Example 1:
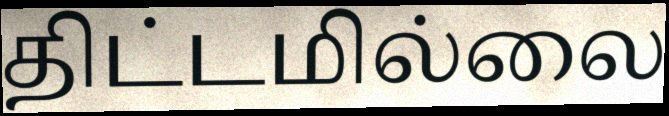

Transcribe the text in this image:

திட்டமில்லை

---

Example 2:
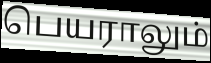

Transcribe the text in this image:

பெயராலும்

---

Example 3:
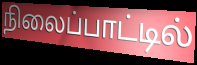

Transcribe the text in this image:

நிலைப்பாட்டில்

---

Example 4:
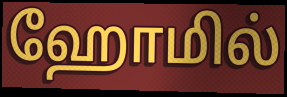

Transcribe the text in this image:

ஹோமில்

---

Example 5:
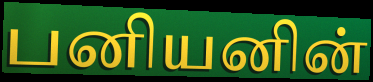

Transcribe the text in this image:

பனியனின்